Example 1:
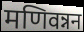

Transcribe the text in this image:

मणिवन्नन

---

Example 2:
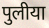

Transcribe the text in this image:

पुलीया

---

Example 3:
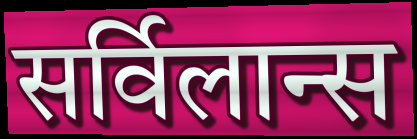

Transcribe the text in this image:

सर्विलान्स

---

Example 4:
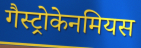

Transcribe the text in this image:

गैस्ट्रोकेनमियस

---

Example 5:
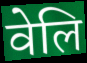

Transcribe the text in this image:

वेलि